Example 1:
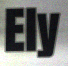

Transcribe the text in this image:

Ely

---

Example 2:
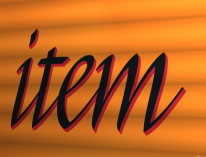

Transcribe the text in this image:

item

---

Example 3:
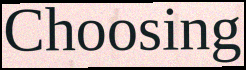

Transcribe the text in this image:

Choosing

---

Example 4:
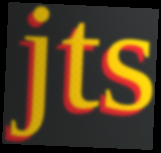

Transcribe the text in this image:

jts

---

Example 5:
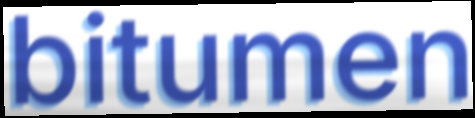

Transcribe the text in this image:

bitumen